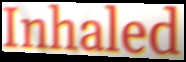
Inhaled